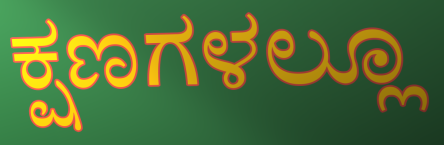
ಕ್ಷಣಗಳಲ್ಲೂ